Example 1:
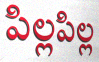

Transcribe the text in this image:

పిల్లపిల్ల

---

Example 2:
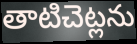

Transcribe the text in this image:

తాటిచెట్లను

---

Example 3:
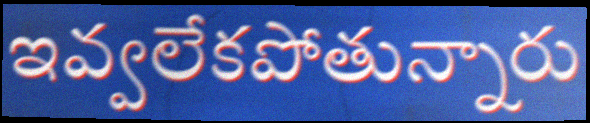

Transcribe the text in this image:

ఇవ్వలేకపోతున్నారు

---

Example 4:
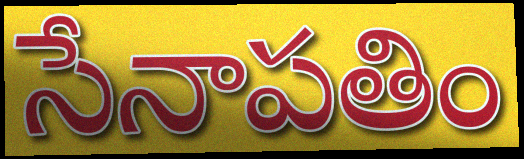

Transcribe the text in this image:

సేనాపతిం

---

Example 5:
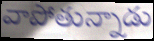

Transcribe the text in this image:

వాపోతున్నాడు